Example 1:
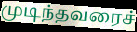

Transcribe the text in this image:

முடிந்தவரைச்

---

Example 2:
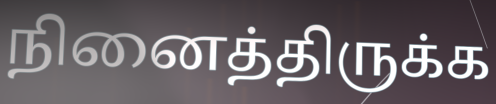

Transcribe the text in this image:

நினைத்திருக்க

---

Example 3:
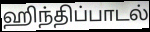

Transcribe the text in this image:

ஹிந்திப்பாடல்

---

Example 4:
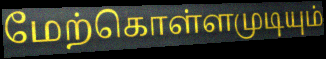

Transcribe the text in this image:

மேற்கொள்ளமுடியும்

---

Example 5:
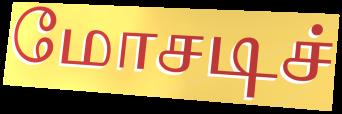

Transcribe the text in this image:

மோசடிச்